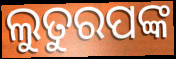
ଲୁତୁରପଙ୍କ